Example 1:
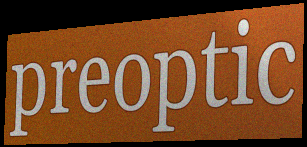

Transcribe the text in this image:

preoptic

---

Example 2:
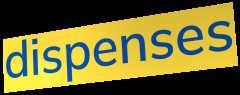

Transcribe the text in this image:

dispenses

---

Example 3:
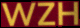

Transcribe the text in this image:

WZH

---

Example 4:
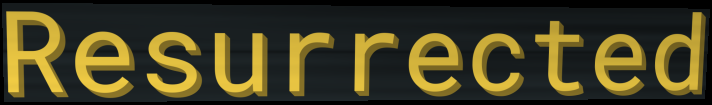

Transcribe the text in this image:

Resurrected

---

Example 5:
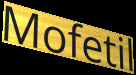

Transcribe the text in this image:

Mofetil